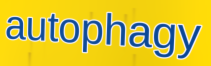
autophagy